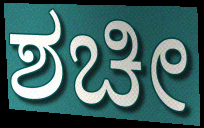
ಶಚೀ